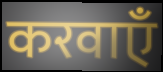
करवाएँ